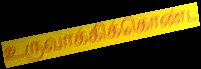
உருவாக்கிக்கொண்ட